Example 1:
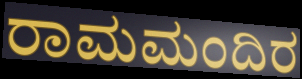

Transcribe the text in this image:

ರಾಮಮಂದಿರ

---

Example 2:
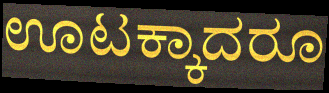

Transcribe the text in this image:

ಊಟಕ್ಕಾದರೂ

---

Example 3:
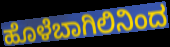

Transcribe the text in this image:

ಹೊಳೆಬಾಗಿಲಿನಿಂದ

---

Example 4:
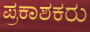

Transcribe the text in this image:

ಪ್ರಕಾಶಕರು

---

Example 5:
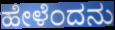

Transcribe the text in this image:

ಹೇಳೆಂದನು